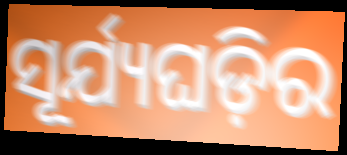
ସୂର୍ଯ୍ୟଘଡ଼ିର